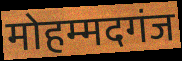
मोहम्मदगंज